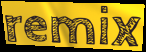
remix